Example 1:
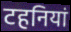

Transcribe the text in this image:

टहनियां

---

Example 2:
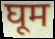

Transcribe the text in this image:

घूम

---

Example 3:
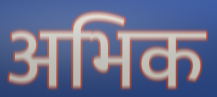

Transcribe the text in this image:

अभिक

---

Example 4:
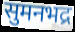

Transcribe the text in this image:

सुमनभद्र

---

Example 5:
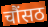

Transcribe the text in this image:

चौंसठ